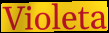
Violeta